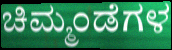
ಚಿಮ್ಮಂಡೆಗಳ